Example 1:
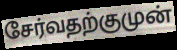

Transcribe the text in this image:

சேர்வதற்குமுன்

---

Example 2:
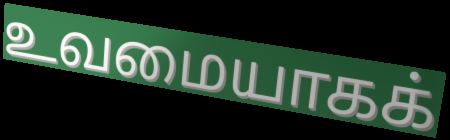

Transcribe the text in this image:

உவமையாகக்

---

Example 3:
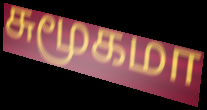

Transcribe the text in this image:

சுமூகமா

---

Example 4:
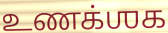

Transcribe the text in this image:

உணக்ஶக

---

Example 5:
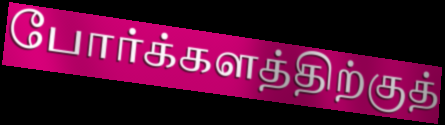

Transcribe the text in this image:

போர்க்களத்திற்குத்